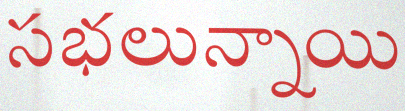
సభలున్నాయి